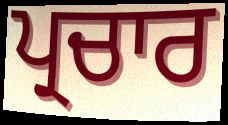
ਪ੍ਰਚਾਰ